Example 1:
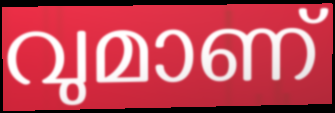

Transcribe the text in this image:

വുമാണ്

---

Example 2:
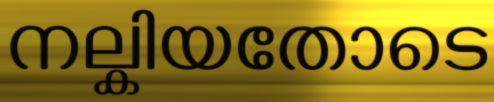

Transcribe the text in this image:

നല്കിയതോടെ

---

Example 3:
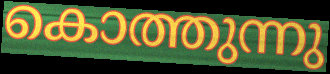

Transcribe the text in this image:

കൊത്തുന്നു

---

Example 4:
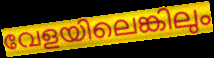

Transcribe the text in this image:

വേളയിലെങ്കിലും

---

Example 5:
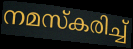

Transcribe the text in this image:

നമസ്കരിച്ച്